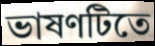
ভাষণটিতে